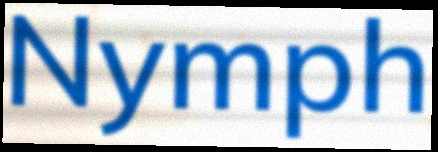
Nymph